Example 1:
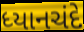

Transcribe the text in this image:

ધ્યાનચંદે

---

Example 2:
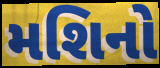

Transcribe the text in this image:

મશિનો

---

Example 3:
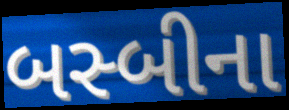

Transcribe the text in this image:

બસ્બીના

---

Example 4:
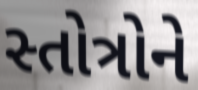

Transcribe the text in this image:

સ્તોત્રોને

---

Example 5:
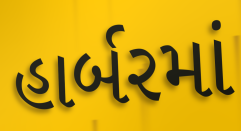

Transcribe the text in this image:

હાર્બરમાં